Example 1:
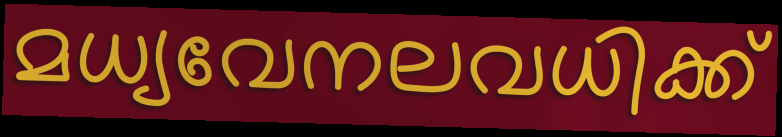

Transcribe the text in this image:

മധ്യവേനലവധിക്ക്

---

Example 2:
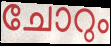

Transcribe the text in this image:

ചോറും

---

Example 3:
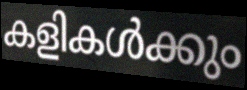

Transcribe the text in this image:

കളികൾക്കും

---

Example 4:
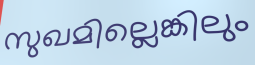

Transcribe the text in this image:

സുഖമില്ലെങ്കിലും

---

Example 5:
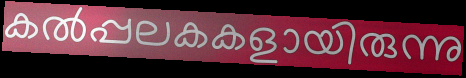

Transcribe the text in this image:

കൽപ്പലകകളായിരുന്നു